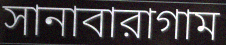
সানাবারাগাম